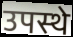
उपस्थे